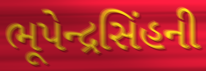
ભૂપેન્દ્રસિંહની